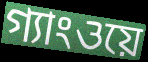
গ্যাংওয়ে